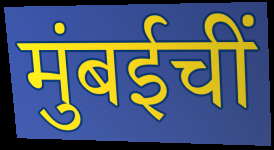
मुंबईचीं